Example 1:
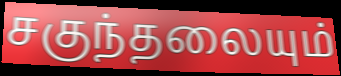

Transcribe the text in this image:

சகுந்தலையும்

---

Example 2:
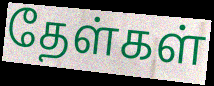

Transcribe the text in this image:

தேள்கள்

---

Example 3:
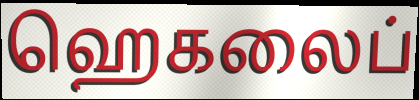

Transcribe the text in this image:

ஹெகலைப்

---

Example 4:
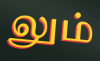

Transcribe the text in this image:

லும்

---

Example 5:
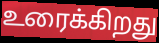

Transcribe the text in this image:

உரைக்கிறது